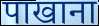
पाखाना